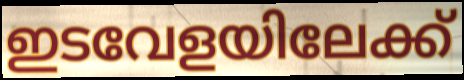
ഇടവേളയിലേക്ക്